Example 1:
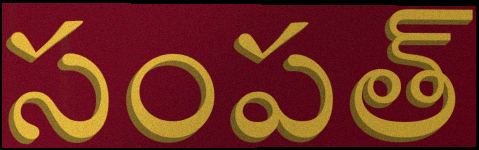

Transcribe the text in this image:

సంపత్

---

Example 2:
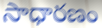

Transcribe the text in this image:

సాధారణం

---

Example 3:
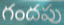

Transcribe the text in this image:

గందపు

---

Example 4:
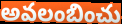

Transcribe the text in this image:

అవలంబించు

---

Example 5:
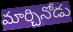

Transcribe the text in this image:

మార్చినోడు